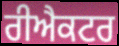
ਰੀਐਕਟਰ